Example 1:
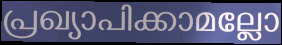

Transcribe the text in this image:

പ്രഖ്യാപിക്കാമല്ലോ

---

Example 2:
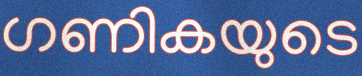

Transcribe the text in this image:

ഗണികയുടെ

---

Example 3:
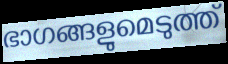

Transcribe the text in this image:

ഭാഗങ്ങളുമെടുത്ത്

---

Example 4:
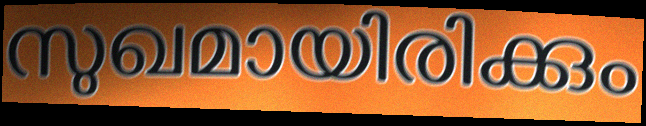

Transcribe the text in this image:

സുഖമായിരിക്കും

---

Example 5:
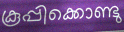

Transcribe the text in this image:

കൂപ്പിക്കൊണ്ടു